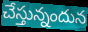
చేస్తున్నందున